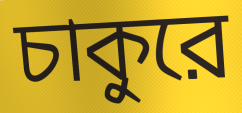
চাকুরে